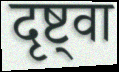
दृष्ट्वा